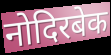
नोदिरबेक